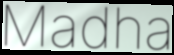
Madha